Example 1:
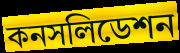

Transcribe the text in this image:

কনসলিডেশন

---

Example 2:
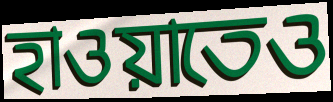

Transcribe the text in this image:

হাওয়াতেও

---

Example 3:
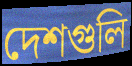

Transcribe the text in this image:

দেশগুলি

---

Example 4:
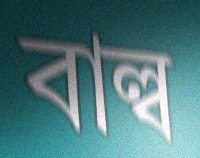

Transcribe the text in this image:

বাল্ব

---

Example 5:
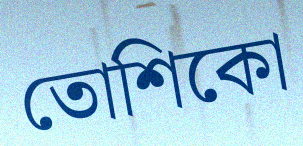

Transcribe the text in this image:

তোশিকো